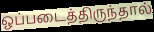
ஒப்படைத்திருந்தால்